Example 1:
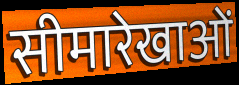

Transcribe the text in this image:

सीमारेखाओं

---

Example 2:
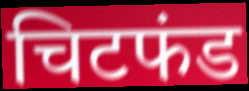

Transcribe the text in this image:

चिटफंड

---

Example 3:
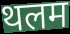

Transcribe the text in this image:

थलम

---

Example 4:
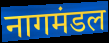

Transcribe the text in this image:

नागमंडल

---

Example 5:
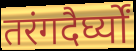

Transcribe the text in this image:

तरंगदैर्घ्यों